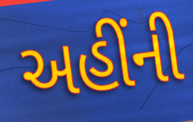
અહીંની